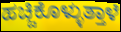
ಹಚ್ಚಿಕೊಳ್ಳುತ್ತಾಳೆ